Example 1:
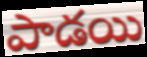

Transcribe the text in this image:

పాడయి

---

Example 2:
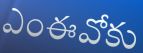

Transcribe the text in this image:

ఎంఈవోకు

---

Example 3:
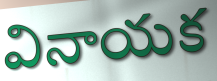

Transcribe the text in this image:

వినాయక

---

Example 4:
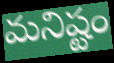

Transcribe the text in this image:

మనిష్టం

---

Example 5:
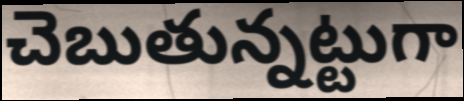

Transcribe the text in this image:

చెబుతున్నట్టుగా